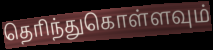
தெரிந்துகொள்ளவும்